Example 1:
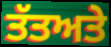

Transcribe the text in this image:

ਤੱਤਅਤੇ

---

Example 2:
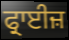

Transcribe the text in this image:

ਫ੍ਰਾਈਜ਼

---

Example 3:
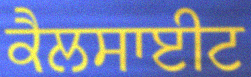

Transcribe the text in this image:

ਕੈਲਸਾਈਟ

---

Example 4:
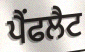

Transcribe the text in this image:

ਪੈਂਫਲੈਟ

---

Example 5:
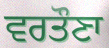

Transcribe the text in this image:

ਵਰਤੌਣਾ